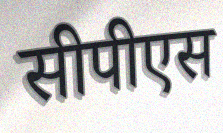
सीपीएस